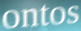
ontos